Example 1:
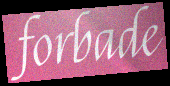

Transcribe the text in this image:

forbade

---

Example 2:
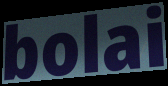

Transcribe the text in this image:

bolai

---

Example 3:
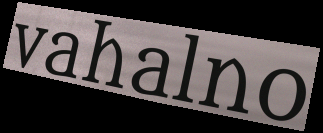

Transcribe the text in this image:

vahalno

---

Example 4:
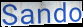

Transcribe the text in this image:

Sando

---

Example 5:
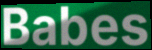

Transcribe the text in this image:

Babes